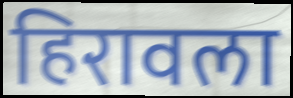
हिरावला